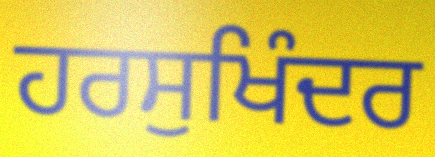
ਹਰਸੁਖਿੰਦਰ